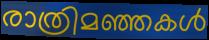
രാത്രിമഞ്ഞകൾ